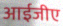
आईजीए